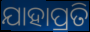
ଯାହାପ୍ରତି